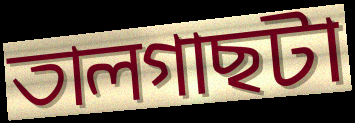
তালগাছটা